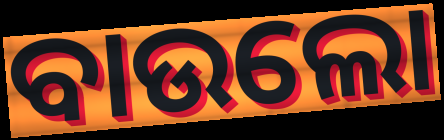
ବାଉଲୋ